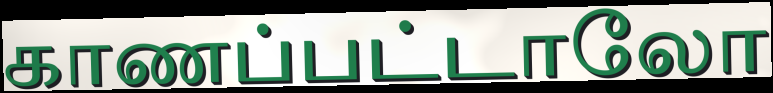
காணப்பட்டாலோ